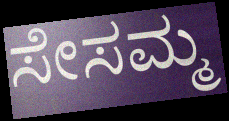
ಸೇಸಮ್ಮ